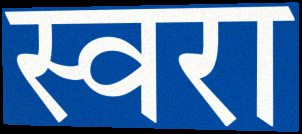
स्वरा